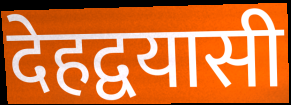
देहद्वयासी